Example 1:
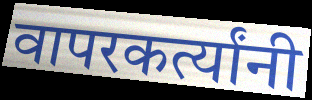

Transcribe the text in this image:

वापरकर्त्यांनी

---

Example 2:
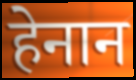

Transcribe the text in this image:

हेनान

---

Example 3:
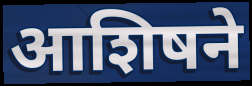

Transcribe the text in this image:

आशिषने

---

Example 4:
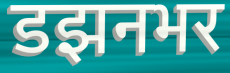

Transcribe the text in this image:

डझनभर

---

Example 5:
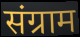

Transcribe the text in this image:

संग्राम